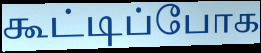
கூட்டிப்போக